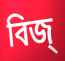
বিজ্